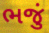
ભજું